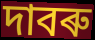
দাবৰু